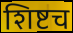
शिष्टच